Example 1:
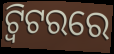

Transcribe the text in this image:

ଟ୍ବିଟରରେ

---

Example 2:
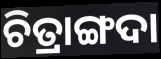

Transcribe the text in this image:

ଚିତ୍ରାଙ୍ଗଦା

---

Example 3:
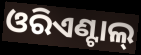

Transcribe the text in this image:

ଓରିଏଣ୍ଟାଲ୍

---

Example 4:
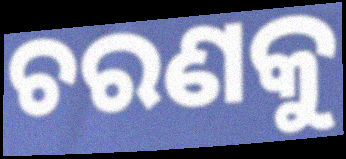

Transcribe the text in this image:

ଚରଣକୁ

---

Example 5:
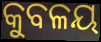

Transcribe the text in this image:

କୁବଳୟ